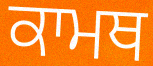
ਕਾਮਥ